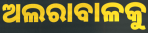
ଅଲରାବାଳକୁ